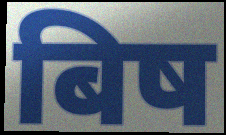
बिष